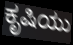
ಕೃಷಿಯು